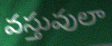
వస్తువులా